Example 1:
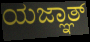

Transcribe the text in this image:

ಯಜ್ಞಾತ್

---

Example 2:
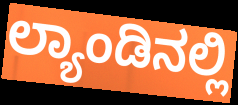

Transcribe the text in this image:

ಲ್ಯಾಂಡಿನಲ್ಲಿ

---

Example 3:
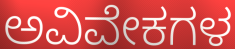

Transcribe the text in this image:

ಅವಿವೇಕಗಳ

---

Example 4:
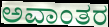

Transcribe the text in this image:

ಅವಾಂತರ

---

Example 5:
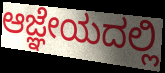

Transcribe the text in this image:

ಆಜ್ಞೇಯದಲ್ಲಿ